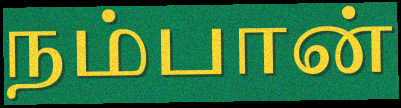
நம்பான்